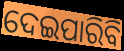
ଦେଇପାରିବି